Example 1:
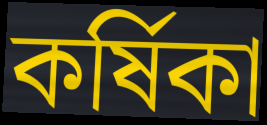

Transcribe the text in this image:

কর্ষিকা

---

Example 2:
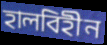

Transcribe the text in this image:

হালবিহীন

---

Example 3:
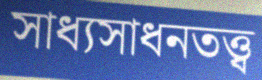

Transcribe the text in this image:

সাধ্যসাধনতত্ত্ব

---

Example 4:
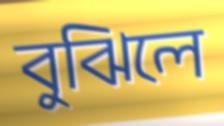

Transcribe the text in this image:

বুঝিলে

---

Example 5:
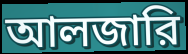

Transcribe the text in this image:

আলজারি